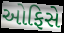
ઓફિસે